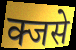
क्जसे